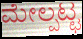
ಮೇಲ್ಪಟ್ಟ